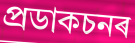
প্ৰডাকচনৰ